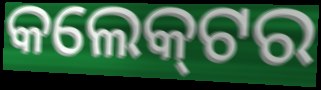
କଲେକ୍‌ଟର